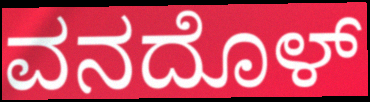
ವನದೊಳ್